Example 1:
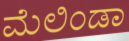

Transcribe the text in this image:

ಮೆಲಿಂಡಾ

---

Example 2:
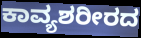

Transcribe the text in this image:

ಕಾವ್ಯಶರೀರದ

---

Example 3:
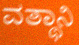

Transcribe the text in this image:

ವತ್ಥಾನಿ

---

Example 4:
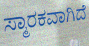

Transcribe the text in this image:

ಸ್ಮಾರಕವಾಗಿದೆ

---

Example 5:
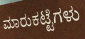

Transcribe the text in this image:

ಮಾರುಕಟ್ಟೆಗಳು